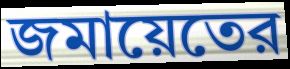
জমায়েতের